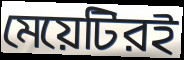
মেয়েটিরই